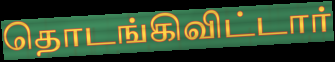
தொடங்கிவிட்டார்